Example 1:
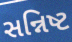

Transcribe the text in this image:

સન્નિષ્ટ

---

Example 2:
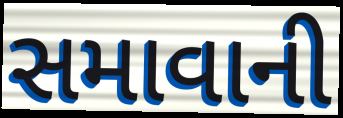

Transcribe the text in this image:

સમાવાની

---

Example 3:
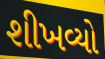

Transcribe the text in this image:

શીખવ્યો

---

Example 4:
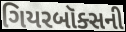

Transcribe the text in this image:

ગિયરબૉક્સની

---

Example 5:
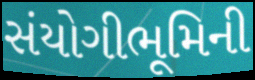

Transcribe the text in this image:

સંયોગીભૂમિની